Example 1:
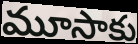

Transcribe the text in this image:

మూసాకు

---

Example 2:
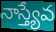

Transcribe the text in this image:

నాస్త్యేవ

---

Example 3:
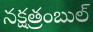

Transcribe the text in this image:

నక్షత్రంబుల్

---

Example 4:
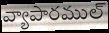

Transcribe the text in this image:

వ్యాపారముల్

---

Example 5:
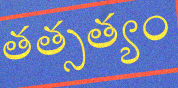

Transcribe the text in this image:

తత్సత్యం